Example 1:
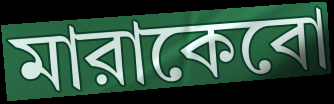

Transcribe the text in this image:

মারাকেবো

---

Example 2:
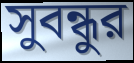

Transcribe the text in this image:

সুবন্ধুর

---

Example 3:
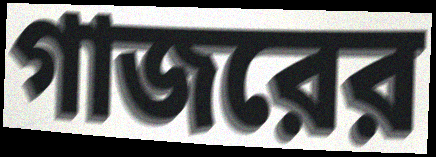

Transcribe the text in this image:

গাজরের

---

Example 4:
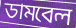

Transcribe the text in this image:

ডামবেল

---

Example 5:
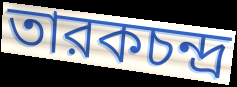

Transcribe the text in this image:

তারকচন্দ্র